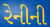
રેનીની